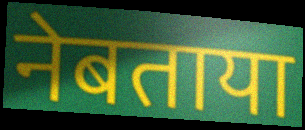
नेबताया